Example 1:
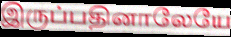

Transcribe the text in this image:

இருப்பதினாலேயே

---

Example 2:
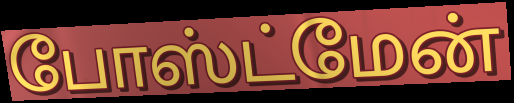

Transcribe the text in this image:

போஸ்ட்மேன்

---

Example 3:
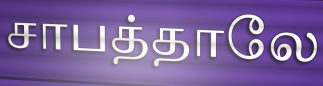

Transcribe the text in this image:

சாபத்தாலே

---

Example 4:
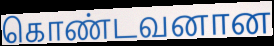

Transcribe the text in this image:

கொண்டவனான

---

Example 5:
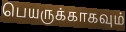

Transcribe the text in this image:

பெயருக்காகவும்